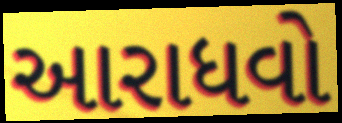
આરાધવો